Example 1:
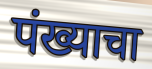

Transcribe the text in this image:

पंख्याचा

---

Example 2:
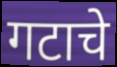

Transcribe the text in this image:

गटाचे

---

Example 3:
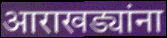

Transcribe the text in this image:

आराखड्यांना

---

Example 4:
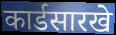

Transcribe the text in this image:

कार्डसारखे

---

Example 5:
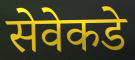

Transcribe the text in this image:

सेवेकडे